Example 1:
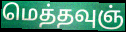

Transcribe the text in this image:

மெத்தவுஞ்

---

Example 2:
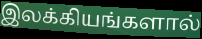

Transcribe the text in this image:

இலக்கியங்களால்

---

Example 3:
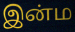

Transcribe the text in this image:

இன்ம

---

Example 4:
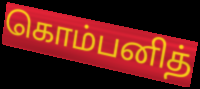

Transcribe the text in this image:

கொம்பனித்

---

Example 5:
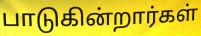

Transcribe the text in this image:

பாடுகின்றார்கள்